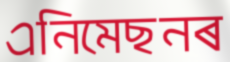
এনিমেছনৰ